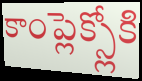
కాంప్లెక్స్లోకి